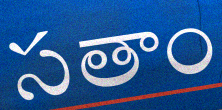
సతాం